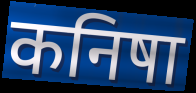
कनिषा